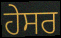
ਹੇਸਰ